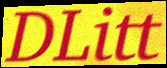
DLitt